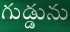
గుడ్డును